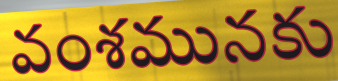
వంశమునకు